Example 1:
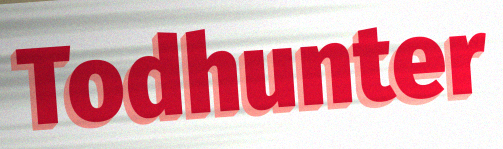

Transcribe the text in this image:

Todhunter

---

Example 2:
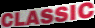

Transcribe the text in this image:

CLASSIC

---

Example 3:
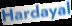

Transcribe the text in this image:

Hardayal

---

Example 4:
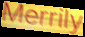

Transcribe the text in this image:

Merrily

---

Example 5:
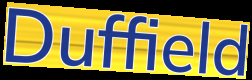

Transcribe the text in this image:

Duffield